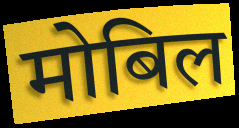
मोबिल